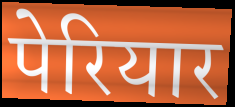
पेरियार